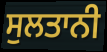
ਸੁਲਤਾਨੀ